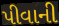
પીવાની